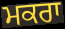
ਮਕਰਾ